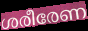
ശരീരേണ